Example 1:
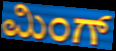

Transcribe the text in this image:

ಮಿಂಗ್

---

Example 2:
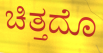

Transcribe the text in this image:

ಚಿತ್ತದೊ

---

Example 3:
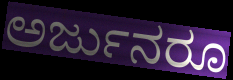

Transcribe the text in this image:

ಅರ್ಜುನರೂ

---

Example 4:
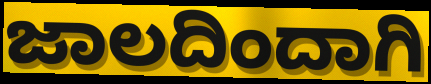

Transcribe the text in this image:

ಜಾಲದಿಂದಾಗಿ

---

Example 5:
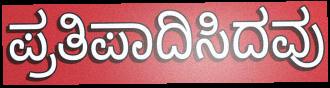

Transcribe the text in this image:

ಪ್ರತಿಪಾದಿಸಿದವು